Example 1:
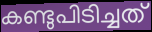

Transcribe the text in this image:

കണ്ടുപിടിച്ചത്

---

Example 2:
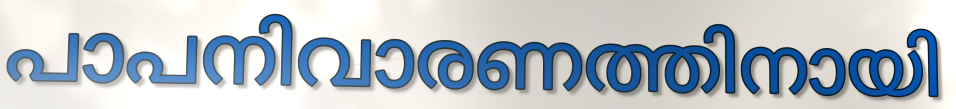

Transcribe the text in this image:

പാപനിവാരണത്തിനായി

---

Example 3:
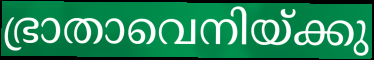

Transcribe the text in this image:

ഭ്രാതാവെനിയ്ക്കു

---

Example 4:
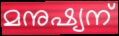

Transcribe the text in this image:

മനുഷ്യന്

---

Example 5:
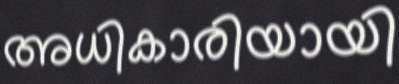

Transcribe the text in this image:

അധികാരിയായി